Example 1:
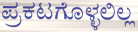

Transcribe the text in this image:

ಪ್ರಕಟಗೊಳ್ಳಲಿಲ್ಲ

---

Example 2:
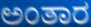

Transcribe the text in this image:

ಅಂತಾರ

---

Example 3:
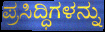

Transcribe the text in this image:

ಪ್ರಸಿದ್ಧಿಗಳನ್ನು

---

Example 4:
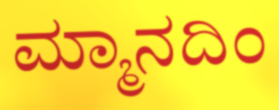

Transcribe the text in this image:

ಮ್ಮಾನದಿಂ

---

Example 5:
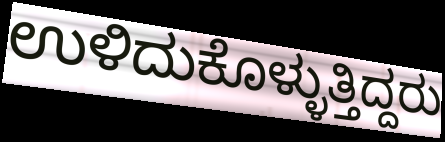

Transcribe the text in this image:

ಉಳಿದುಕೊಳ್ಳುತ್ತಿದ್ದರು